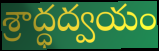
శ్రాద్ధద్వయం